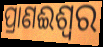
ପ୍ରାଣଈଶ୍ୱର